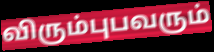
விரும்புபவரும்